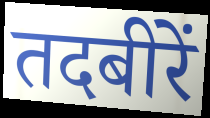
तदबीरें